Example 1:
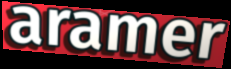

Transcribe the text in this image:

aramer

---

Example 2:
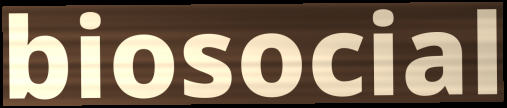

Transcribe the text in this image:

biosocial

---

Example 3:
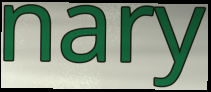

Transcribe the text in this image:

nary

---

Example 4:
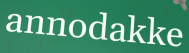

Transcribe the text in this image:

annodakke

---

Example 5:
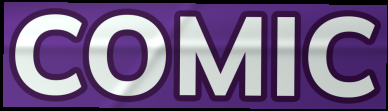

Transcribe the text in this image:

COMIC